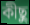
কীছু